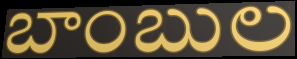
బాంబుల